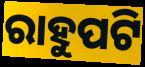
ରାହୁପଟି